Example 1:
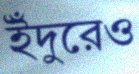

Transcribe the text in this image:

ইঁদুরেও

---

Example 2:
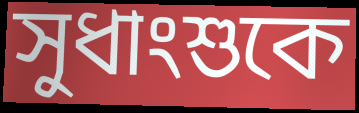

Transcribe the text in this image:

সুধাংশুকে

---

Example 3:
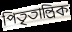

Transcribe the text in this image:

পিতৃতান্ত্রিক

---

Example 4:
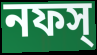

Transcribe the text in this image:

নফস্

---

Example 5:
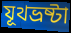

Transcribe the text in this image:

যূথভ্রষ্টা